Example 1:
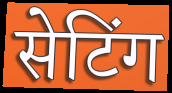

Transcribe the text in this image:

सेटिंग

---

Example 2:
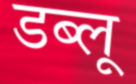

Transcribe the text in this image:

डब्लू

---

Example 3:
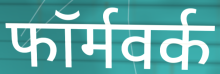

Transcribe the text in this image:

फॉर्मवर्क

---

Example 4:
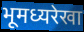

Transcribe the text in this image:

भूमध्यरेखा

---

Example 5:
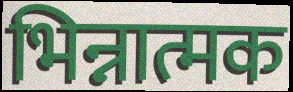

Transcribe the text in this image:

भिन्नात्मक